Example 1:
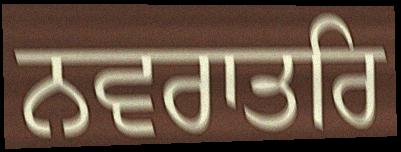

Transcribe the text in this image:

ਨਵਰਾਤਰਿ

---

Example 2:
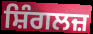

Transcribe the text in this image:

ਸ਼ਿੰਗਲਜ਼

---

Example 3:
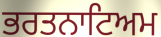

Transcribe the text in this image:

ਭਰਤਨਾਟਿਅਮ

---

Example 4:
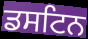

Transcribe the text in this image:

ਡਸਟਿਨ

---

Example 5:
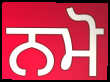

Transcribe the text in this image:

ਨਮੋ